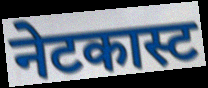
नेटकास्ट